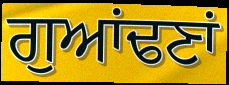
ਗੁਆਂਢਣਾਂ